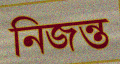
নিজন্ত